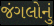
જંગલોનું